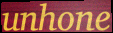
unhone